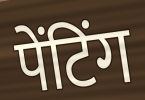
पेंटिंग